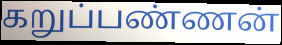
கறுப்பண்ணன்